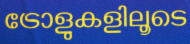
ട്രോളുകളിലൂടെ